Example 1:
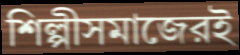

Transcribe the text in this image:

শিল্পীসমাজেরই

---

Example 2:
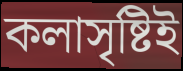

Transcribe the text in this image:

কলাসৃষ্টিই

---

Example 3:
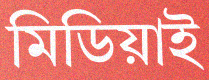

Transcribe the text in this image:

মিডিয়াই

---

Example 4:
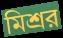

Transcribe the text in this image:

মিশ্রর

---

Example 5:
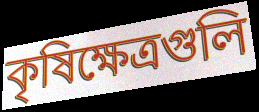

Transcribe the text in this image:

কৃষিক্ষেত্রগুলি